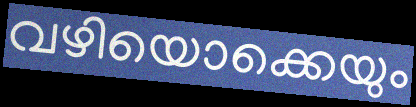
വഴിയൊക്കെയും